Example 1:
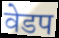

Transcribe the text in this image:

वेडप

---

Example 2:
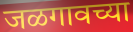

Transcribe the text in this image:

जळगावच्या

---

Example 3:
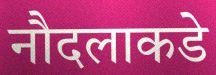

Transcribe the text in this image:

नौदलाकडे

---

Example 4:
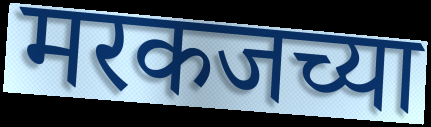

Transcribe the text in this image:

मरकजच्या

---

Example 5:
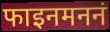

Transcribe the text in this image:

फाइनमननं